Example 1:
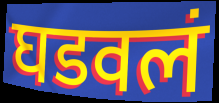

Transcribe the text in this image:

घडवलं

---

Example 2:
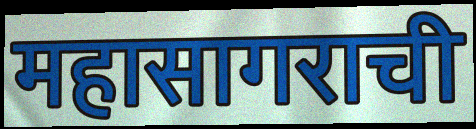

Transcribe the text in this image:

महासागराची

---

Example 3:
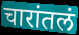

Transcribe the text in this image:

चारांतलं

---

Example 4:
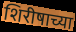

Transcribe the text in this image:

शिरीषाच्या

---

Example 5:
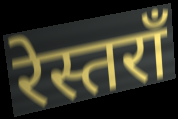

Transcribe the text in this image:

रेस्तराँ